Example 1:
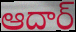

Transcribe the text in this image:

ఆదార్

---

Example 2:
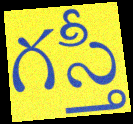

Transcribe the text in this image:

గస్తీ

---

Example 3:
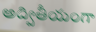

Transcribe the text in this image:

అద్వితీయంగా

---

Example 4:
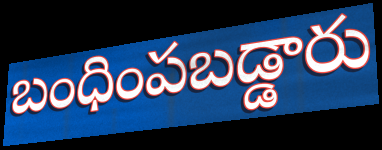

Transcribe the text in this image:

బంధింపబడ్డారు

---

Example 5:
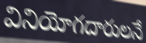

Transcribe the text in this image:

వినియోగదారులనే